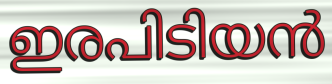
ഇരപിടിയൻ